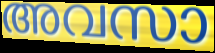
അവസാ